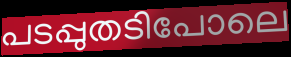
പടപ്പുതടിപോലെ